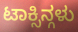
ಟಾಕ್ಸಿನ್ಗಳು